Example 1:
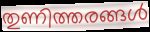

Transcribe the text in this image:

തുണിത്തരങ്ങൾ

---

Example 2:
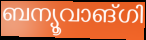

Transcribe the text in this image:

ബന്യൂവാങ്ഗി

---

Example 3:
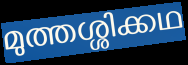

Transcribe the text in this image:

മുത്തശ്ശിക്കഥ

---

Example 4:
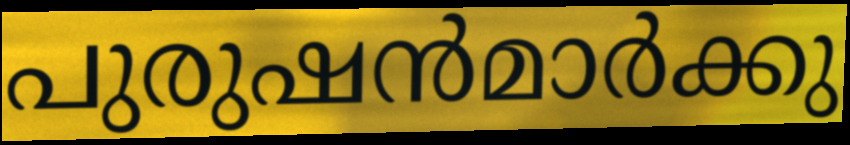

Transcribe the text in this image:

പുരുഷൻമാർക്കു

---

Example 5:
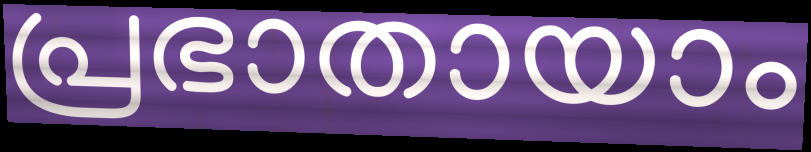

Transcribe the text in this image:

പ്രഭാതായാം